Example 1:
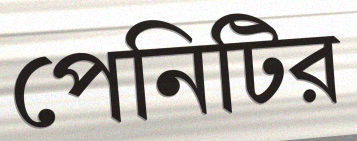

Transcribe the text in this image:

পেনিটির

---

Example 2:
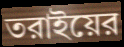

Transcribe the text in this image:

তরাইয়ের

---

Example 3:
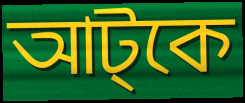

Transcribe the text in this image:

আট্‌কে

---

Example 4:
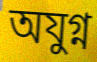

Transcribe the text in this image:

অযুগ্ন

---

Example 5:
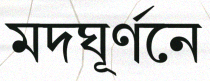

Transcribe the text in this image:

মদঘূর্ণনে